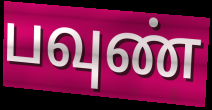
பவுண்